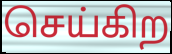
செய்கிற